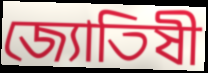
জ্যোতিষী